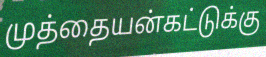
முத்தையன்கட்டுக்கு